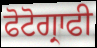
ਫੋਟੋਗ੍ਰਾਫੀ